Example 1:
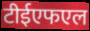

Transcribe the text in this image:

टीईएफएल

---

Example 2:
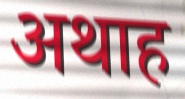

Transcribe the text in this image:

अथाह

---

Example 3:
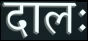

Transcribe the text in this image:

दालः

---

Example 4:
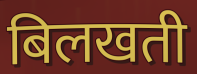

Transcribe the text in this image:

बिलखती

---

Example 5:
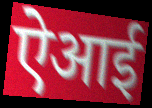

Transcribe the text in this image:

ऐआई